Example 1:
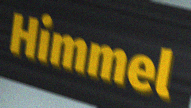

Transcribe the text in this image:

Himmel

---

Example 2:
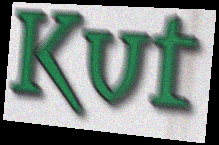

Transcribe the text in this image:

Kut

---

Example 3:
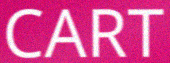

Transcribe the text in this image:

CART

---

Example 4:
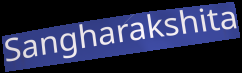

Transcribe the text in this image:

Sangharakshita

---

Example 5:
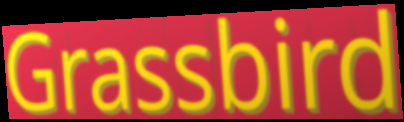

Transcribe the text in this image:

Grassbird